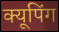
क्यूपिंग